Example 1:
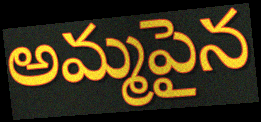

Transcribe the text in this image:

అమ్మపైన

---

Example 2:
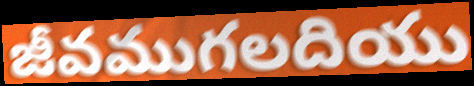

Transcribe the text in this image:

జీవముగలదియు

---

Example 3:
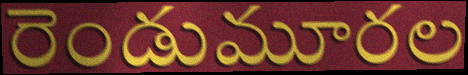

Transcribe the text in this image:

రెండుమూరల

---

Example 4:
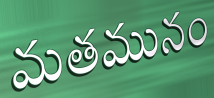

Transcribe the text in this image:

మతమునం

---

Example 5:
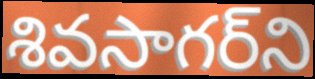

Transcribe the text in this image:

శివసాగర్‌ని